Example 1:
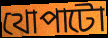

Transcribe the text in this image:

থোপাটো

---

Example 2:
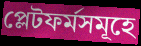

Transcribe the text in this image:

প্লেটফৰ্মসমূহে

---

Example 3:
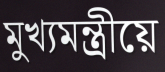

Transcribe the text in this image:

মুখ্যমন্ত্ৰীয়ে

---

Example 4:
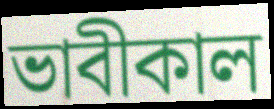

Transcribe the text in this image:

ভাবীকাল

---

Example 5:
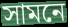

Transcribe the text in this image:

সামনে